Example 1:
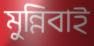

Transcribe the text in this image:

মুন্নিবাই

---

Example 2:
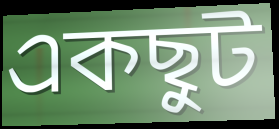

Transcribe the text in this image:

একছুট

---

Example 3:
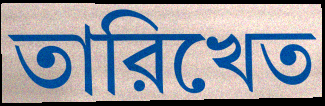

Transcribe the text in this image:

তারিখেত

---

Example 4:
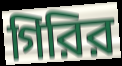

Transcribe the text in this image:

গিরির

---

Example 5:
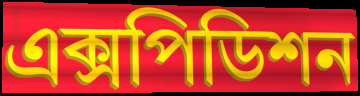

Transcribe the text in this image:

এক্সপিডিশন